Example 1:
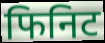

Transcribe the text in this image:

फिनिट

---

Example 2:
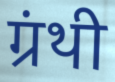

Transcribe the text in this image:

ग्रंथी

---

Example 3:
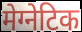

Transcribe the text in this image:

मेग्नेटिक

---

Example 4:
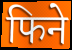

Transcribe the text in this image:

फिने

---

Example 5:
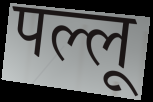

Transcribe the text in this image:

पल्लू